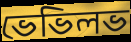
ভেভিলভ